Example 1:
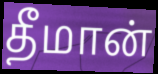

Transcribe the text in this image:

தீமான்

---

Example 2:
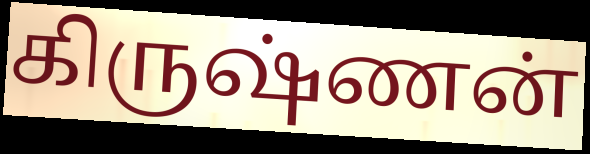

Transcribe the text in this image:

கிருஷ்ணன்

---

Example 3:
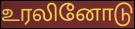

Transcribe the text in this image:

உரலினோடு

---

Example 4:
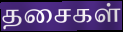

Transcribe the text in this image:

தசைகள்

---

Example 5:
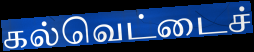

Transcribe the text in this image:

கல்வெட்டைச்